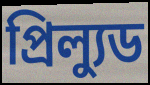
প্রিল্যুড